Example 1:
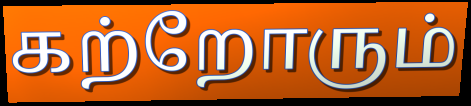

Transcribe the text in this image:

கற்றோரும்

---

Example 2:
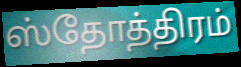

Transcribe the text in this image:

ஸ்தோத்திரம்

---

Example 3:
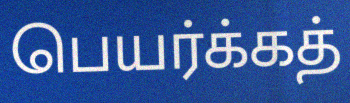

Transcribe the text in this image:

பெயர்க்கத்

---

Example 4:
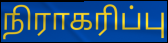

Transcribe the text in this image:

நிராகரிப்பு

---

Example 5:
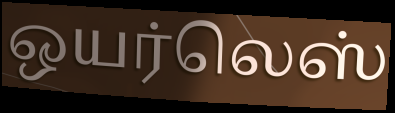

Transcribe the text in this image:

ஒயர்லெஸ்